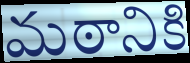
మఠానికి